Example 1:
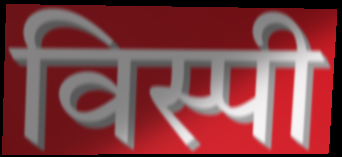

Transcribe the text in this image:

विस्पी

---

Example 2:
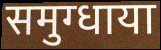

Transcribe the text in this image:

समुग्धाया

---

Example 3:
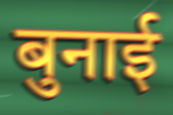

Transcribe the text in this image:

बुनाई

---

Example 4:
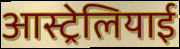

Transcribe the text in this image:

आस्ट्रेलियाई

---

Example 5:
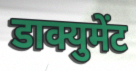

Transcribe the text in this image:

डाक्युमेंट